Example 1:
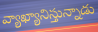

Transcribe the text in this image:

వ్యాఖ్యానిస్తున్నాడు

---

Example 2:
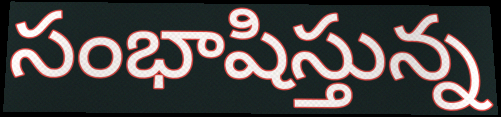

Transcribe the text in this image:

సంభాషిస్తున్న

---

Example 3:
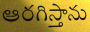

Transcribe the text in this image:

ఆరగిస్తాను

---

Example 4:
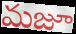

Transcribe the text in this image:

మజూ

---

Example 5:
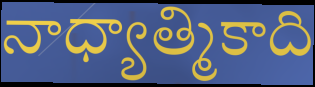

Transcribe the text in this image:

నాధ్యాత్మికాది